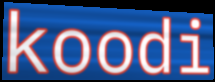
koodi